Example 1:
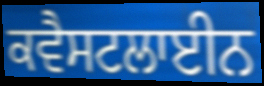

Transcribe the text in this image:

ਕਵੈਸਟਲਾਈਨ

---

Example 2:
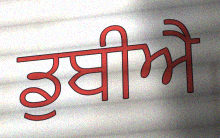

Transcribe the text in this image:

ਡੁਬੀਐ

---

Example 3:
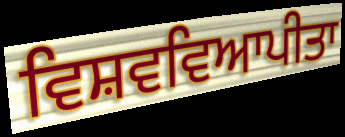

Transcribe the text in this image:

ਵਿਸ਼ਵਵਿਆਪੀਤਾ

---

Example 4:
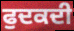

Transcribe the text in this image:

ਫੁਦਕਦੀ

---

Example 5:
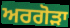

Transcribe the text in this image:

ਅਰਗੋੜਾ